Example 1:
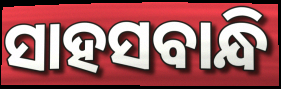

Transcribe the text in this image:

ସାହସବାନ୍ଧି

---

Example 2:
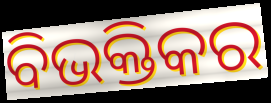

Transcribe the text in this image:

ବିଭକ୍ତିକର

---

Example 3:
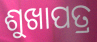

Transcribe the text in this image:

ଶୁଖାପତ୍ର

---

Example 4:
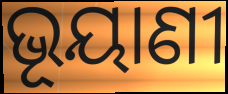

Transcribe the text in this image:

ଭୂୟାଣୀ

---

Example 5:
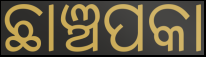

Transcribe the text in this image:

ଛାଞ୍ଚପକା